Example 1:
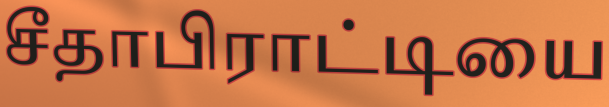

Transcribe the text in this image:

சீதாபிராட்டியை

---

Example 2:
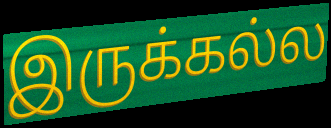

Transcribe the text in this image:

இருக்கல்ல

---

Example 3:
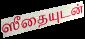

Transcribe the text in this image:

ஸீதையுடன்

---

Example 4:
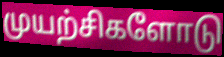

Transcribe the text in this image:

முயற்சிகளோடு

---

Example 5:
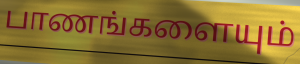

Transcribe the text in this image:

பாணங்களையும்